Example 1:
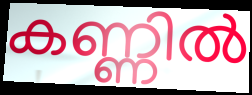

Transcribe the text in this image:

കണ്ണിൽ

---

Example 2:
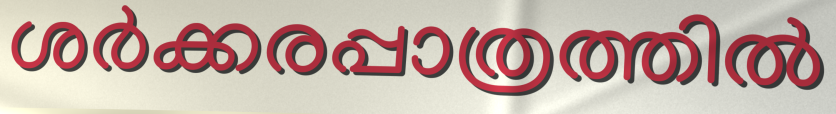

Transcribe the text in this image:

ശർക്കരപ്പാത്രത്തിൽ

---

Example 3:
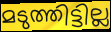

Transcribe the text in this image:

മടുത്തിട്ടില്ല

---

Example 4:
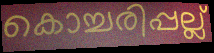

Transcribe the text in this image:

കൊച്ചരിപ്പല്ല്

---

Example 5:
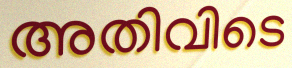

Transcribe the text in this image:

അതിവിടെ